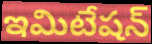
ఇమిటేషన్